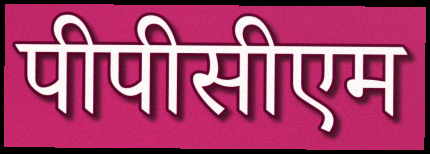
पीपीसीएम